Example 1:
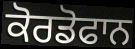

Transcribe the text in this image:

ਕੋਰਡੋਫਾਨ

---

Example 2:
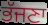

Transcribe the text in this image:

ਭੱਜਣਾ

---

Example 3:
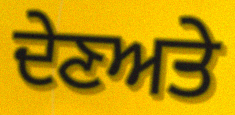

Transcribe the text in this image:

ਦੇਣਅਤੇ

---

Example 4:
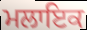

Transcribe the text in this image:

ਮਲਾਇਕ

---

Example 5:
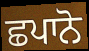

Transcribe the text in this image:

ਛਪਾਨੋ